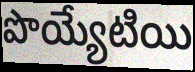
పొయ్యేటియి